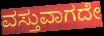
ವಸ್ತುವಾಗದೇ